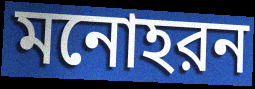
মনোহরন